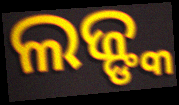
ଲଜ୍ଙ୍କ